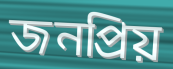
জনপ্রিয়